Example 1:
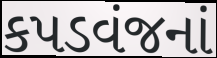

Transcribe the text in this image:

કપડવંજનાં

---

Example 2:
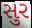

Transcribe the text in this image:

સુર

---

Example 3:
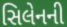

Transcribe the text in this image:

સિલેનની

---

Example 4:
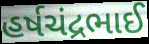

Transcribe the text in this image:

હર્ષચંદ્રભાઈ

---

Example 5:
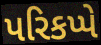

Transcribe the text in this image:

પરિકપ્પે